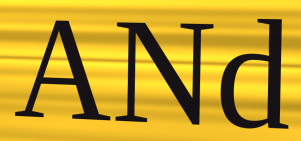
ANd